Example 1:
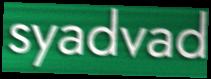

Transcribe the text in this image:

syadvad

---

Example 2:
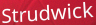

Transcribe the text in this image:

Strudwick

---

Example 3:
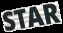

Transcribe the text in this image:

STAR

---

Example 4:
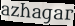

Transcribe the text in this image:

azhagar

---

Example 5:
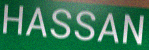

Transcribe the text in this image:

HASSAN